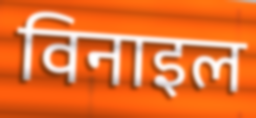
विनाइल